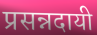
प्रसन्नदायी